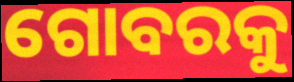
ଗୋବରକୁ